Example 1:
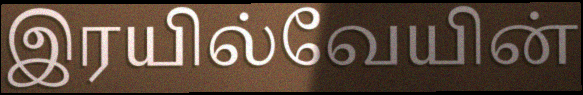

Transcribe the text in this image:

இரயில்வேயின்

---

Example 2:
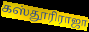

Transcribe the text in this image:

கஸ்தூரிராஜா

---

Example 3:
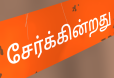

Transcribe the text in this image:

சேர்க்கின்றது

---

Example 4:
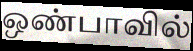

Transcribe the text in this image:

ஒண்பாவில்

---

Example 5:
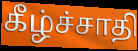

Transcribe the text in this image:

கீழ்ச்சாதி